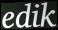
edik